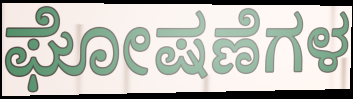
ಘೋಷಣೆಗಳ